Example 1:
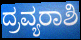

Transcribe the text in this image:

ದ್ರವ್ಯರಾಶಿ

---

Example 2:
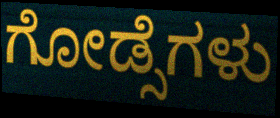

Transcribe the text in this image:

ಗೋಡ್ಸೆಗಳು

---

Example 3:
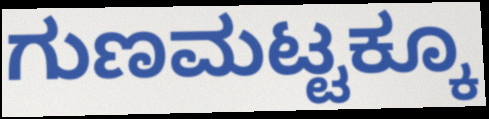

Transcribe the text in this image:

ಗುಣಮಟ್ಟಕ್ಕೂ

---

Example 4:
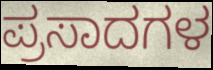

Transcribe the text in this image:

ಪ್ರಸಾದಗಳ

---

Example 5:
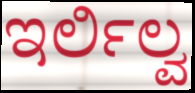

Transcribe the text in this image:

ಇರ್ಲಿಲ್ವ